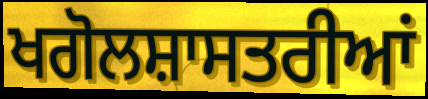
ਖਗੋਲਸ਼ਾਸਤਰੀਆਂ